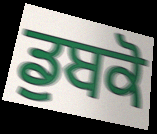
ਡੁਬਕੋ